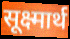
सूक्ष्मार्थ